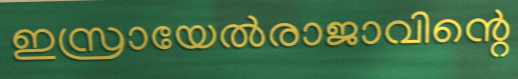
ഇസ്രായേൽരാജാവിന്റെ